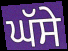
ਘੱਸੇ